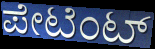
ಪೇಟೆಂಟ್